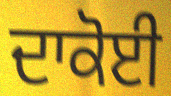
ਦਾਕੋਈ